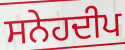
ਸਨੇਹਦੀਪ